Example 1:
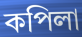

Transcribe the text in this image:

কপিলা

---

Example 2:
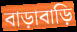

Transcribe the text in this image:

বাড়াবাড়ি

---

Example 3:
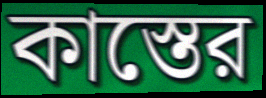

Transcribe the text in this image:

কাস্তের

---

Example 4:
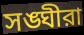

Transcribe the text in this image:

সঙ্ঘীরা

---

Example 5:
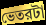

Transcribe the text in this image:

ভেতরটা